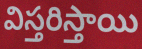
విస్తరిస్తాయి